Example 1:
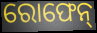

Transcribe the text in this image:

ରୋଫେନ୍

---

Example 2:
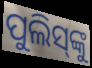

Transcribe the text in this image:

ପୁଲିସ୍‌ଙ୍କୁ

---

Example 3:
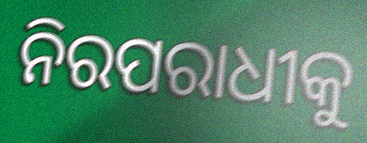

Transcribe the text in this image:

ନିରପରାଧୀକୁ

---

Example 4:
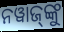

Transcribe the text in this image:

ନୱାଜ୍‍ଙ୍କୁ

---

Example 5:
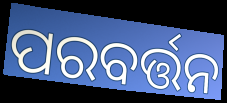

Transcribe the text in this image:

ପରବର୍ତ୍ତନ